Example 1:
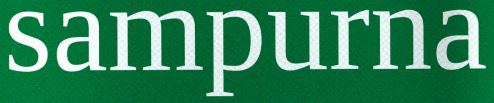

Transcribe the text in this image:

sampurna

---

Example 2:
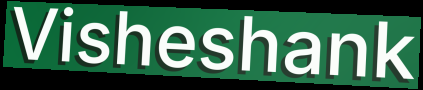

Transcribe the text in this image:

Visheshank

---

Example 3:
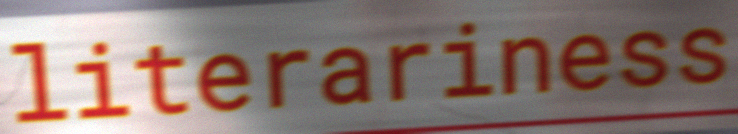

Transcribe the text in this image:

literariness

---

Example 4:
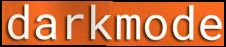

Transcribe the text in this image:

darkmode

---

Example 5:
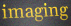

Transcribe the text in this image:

imaging